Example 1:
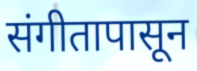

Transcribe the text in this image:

संगीतापासून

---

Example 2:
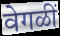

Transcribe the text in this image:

वेगळीं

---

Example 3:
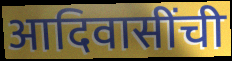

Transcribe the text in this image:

आदिवासींची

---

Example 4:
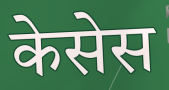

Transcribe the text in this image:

केसेस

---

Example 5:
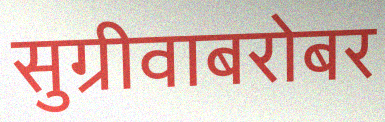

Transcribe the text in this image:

सुग्रीवाबरोबर